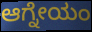
ಆಗ್ನೇಯಂ